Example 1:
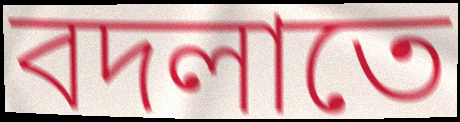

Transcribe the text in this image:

বদলাতে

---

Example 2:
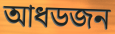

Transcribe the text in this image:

আধডজন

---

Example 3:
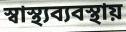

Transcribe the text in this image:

স্বাস্থ্যব্যবস্থায়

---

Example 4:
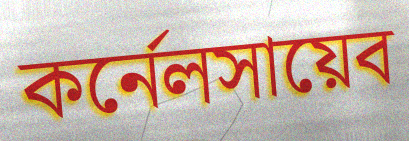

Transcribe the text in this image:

কর্নেলসায়েব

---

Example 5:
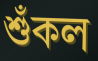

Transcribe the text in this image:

শুঁকল